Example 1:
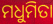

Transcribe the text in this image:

ମଧୁମିତା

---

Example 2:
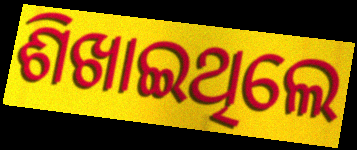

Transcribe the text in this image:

ଶିଖାଇଥିଲେ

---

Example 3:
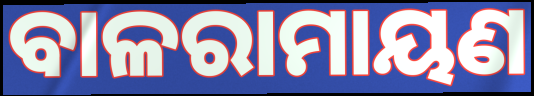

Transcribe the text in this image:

ବାଳରାମାୟଣ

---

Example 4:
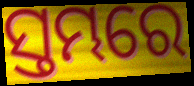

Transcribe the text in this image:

ସ୍ତମ୍ଭରେ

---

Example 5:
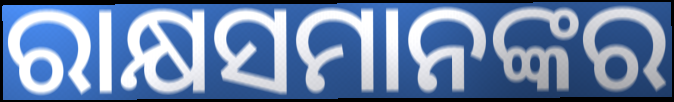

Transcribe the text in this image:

ରାକ୍ଷସମାନଙ୍କର